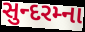
સુન્દરમ્ના